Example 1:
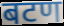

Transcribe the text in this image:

बटण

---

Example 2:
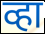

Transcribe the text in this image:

व्हा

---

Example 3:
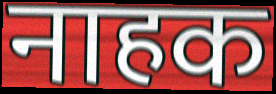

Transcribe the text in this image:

नाहक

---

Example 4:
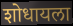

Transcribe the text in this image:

शोधायला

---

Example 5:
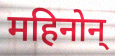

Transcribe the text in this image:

महिनोन्